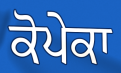
ਕੋਪੇਕਾ